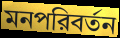
মনপরিবর্তন